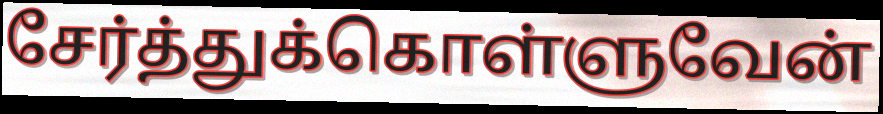
சேர்த்துக்கொள்ளுவேன்